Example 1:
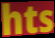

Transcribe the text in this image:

hts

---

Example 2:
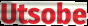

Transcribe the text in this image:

Utsobe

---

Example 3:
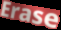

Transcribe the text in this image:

Erase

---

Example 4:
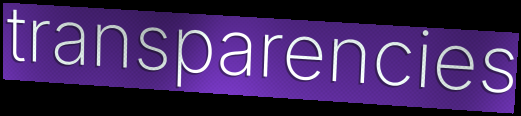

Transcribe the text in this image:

transparencies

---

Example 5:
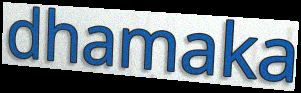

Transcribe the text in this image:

dhamaka